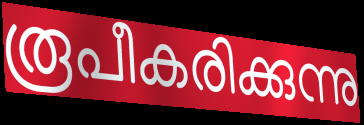
രൂപീകരിക്കുന്നു